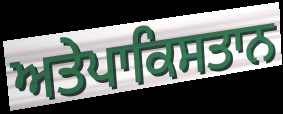
ਅਤੇਪਾਕਿਸਤਾਨ